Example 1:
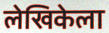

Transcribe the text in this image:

लेखिकेला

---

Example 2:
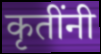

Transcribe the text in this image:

कृतींनी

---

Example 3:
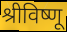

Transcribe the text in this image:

श्रीविष्णू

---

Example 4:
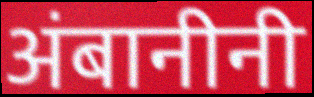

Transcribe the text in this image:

अंबानीनी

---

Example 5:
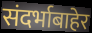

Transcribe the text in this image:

संदर्भाबाहेर